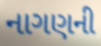
નાગણની